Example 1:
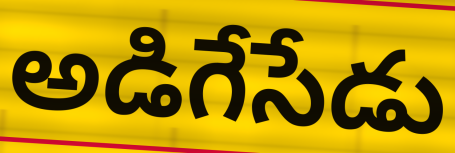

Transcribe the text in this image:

అడిగేసేడు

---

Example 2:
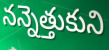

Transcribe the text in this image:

నన్నెత్తుకుని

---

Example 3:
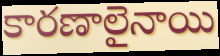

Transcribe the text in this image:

కారణాలైనాయి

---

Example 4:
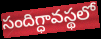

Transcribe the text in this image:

సందిగ్ధావస్థలో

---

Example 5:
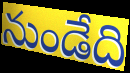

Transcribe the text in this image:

నుండేది